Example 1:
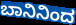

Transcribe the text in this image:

ಬಾನಿನಿಂದ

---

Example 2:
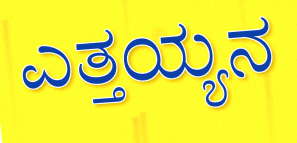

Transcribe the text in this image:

ಎತ್ತಯ್ಯನ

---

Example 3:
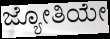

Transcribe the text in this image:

ಜ್ಯೋತಿಯೇ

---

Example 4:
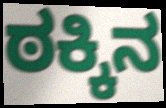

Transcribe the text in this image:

ಠಕ್ಕಿನ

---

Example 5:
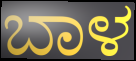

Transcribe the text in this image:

ಬಾಳ